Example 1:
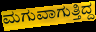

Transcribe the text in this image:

ಮಗುವಾಗುತ್ತಿದ್ದ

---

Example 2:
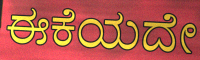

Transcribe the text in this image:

ಈಕೆಯದೇ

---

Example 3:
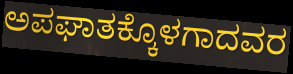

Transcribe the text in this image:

ಅಪಘಾತಕ್ಕೊಳಗಾದವರ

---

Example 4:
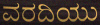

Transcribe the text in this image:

ವರದಿಯು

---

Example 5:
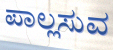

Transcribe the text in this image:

ಪಾಲ್ಲಸುವ